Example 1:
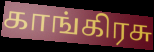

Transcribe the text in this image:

காங்கிரசு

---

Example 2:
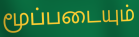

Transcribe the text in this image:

மூப்படையும்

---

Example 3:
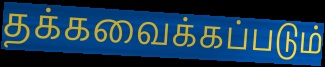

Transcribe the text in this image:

தக்கவைக்கப்படும்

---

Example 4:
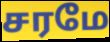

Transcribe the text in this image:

சரமே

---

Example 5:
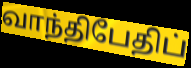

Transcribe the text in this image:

வாந்திபேதிப்